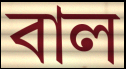
বাল